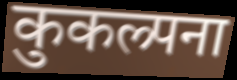
कुकल्पना